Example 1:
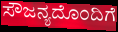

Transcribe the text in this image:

ಸೌಜನ್ಯದೊಂದಿಗೆ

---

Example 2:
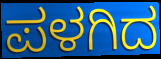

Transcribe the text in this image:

ಪಳಗಿದ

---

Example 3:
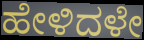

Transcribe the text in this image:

ಹೇಳಿದಳೇ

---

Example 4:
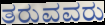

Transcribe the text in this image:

ತರುವವರು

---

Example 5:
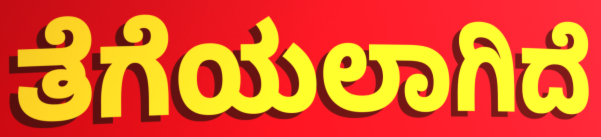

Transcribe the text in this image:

ತೆಗೆಯಲಾಗಿದೆ